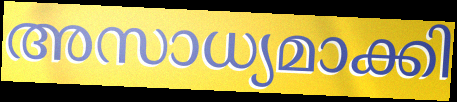
അസാധ്യമാക്കി